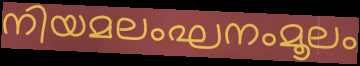
നിയമലംഘനംമൂലം